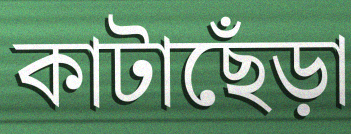
কাটাছেঁড়া